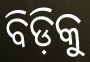
ବିଡ଼ିକୁ